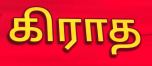
கிராத